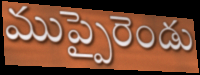
ముప్పైరెండు